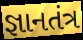
જ્ઞાનતંત્ર